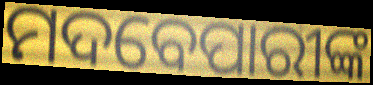
ମଦବେପାରୀଙ୍କ